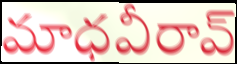
మాధవీరావ్